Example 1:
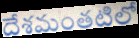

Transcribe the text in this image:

దేశమంతటిలో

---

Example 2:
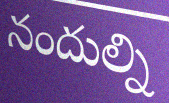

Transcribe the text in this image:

నందుల్ని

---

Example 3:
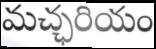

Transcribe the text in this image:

మచ్ఛరియం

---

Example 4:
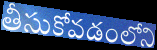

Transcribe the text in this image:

తీసుకోవడంలోని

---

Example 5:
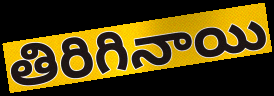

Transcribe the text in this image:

తిరిగినాయి